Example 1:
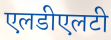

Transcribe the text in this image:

एलडीएलटी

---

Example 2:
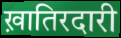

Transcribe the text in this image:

ख़ातिरदारी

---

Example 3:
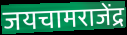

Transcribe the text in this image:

जयचामराजेंद्र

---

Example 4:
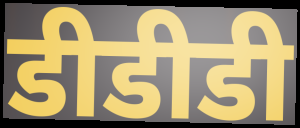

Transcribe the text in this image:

डीडीडी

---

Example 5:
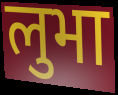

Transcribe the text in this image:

लुभा